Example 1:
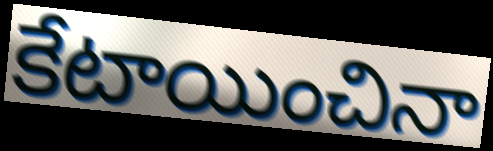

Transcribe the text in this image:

కేటాయించినా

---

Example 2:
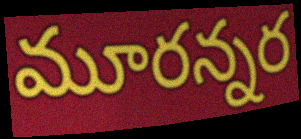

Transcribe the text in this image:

మూరన్నర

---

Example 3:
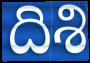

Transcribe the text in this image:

దిశి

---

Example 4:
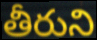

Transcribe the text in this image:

తీరుని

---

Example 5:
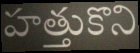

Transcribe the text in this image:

హత్తుకొని